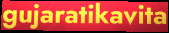
gujaratikavita